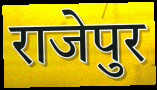
राजेपुर